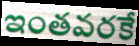
ఇంతవరకే